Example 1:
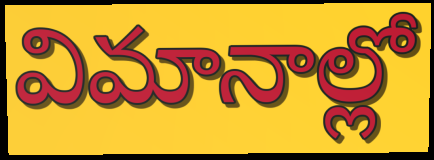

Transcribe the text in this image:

విమానాల్లో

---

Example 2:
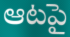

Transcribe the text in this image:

ఆటపై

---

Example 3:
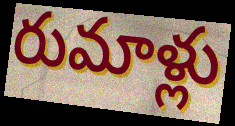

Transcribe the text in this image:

రుమాళ్లు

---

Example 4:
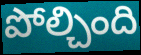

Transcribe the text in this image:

పోల్చింది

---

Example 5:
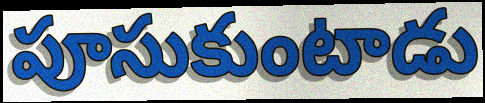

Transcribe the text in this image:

పూసుకుంటాడు